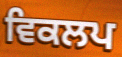
ਵਿਕਲਪ